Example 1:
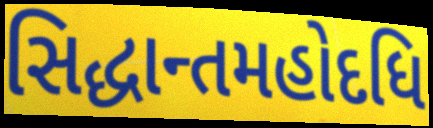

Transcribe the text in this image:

સિદ્ધાન્તમહોદધિ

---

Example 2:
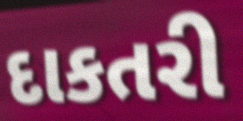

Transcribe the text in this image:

દાકતરી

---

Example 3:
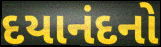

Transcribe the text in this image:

દયાનંદનો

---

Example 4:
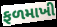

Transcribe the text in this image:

ફળમાખી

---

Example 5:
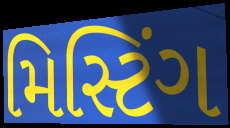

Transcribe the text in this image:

મિસ્ટિંગ